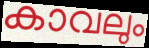
കാവലും